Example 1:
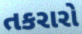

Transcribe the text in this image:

તકરારો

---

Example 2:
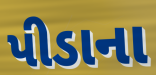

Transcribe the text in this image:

પીડાના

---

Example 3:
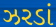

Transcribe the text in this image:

ઝરડાં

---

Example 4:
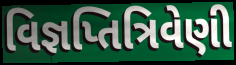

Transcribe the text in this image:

વિજ્ઞપ્તિત્રિવેણી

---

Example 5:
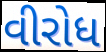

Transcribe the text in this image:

વીરોધ